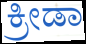
ಕ್ರೀಡಾ